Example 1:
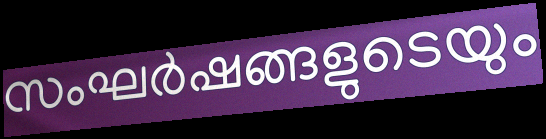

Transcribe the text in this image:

സംഘർഷങ്ങളുടെയും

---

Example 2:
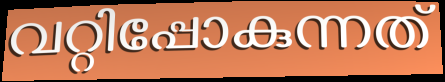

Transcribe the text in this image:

വറ്റിപ്പോകുന്നത്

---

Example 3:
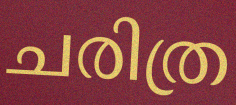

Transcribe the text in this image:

ചരിത്ര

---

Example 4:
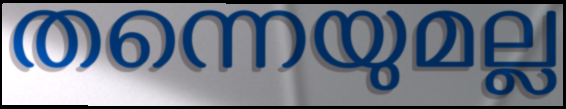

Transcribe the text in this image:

തന്നെയുമല്ല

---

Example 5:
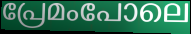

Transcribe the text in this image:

പ്രേമംപോലെ